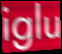
iglu